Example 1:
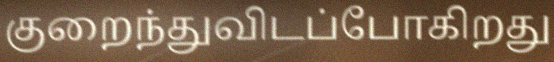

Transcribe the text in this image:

குறைந்துவிடப்போகிறது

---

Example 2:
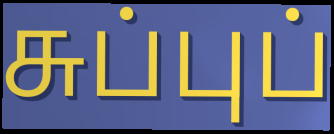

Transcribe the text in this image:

சுப்புப்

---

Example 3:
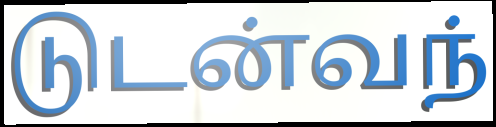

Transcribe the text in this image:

டுடன்வந்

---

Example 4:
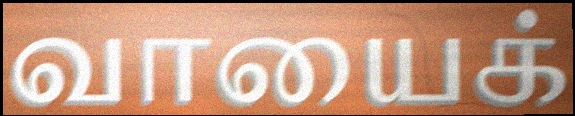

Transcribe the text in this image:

வாயைக்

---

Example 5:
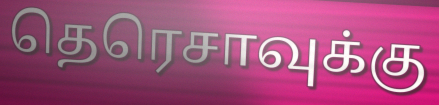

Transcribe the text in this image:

தெரெசாவுக்கு